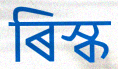
ৰিস্ক